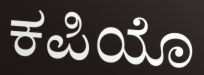
ಕಪಿಯೊ